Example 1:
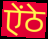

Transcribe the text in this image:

ऐंठे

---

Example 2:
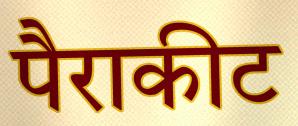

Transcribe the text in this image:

पैराकीट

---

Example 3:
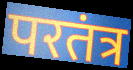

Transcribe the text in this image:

परतंत्र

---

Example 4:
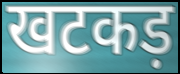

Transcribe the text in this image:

खटकड़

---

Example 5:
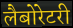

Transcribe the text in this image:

लैबोरेटरी